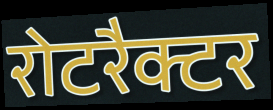
रोटरैक्टर